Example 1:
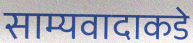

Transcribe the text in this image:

साम्यवादाकडे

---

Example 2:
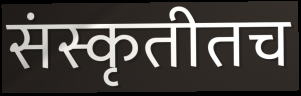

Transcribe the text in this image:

संस्कृतीतच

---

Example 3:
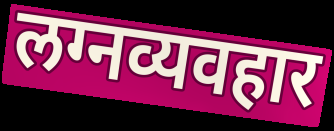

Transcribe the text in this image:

लग्नव्यवहार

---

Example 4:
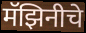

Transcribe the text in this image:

मॅझिनीचे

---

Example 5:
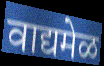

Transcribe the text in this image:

वाद्यमेळ